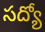
సద్యో